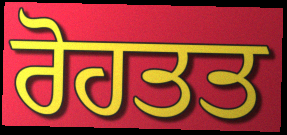
ਰੋਹਤਤ